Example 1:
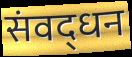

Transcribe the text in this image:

संवद्धन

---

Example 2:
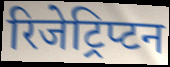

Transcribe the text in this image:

रिजेट्रिप्टन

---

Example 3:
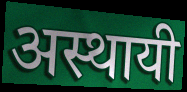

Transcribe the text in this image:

अस्थायी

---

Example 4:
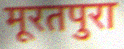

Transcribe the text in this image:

मूरतपुरा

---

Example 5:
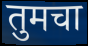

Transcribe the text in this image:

तुमचा